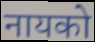
नायको